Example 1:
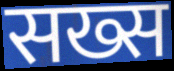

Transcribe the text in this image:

सख्स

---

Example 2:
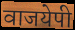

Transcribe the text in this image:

वाजयेपी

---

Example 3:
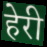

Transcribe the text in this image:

हेरी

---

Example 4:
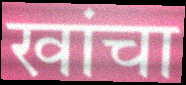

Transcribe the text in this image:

खांचा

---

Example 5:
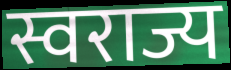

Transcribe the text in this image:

स्वराज्य